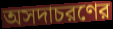
অসদাচরণের